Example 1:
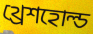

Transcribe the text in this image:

থ্রেশহোল্ড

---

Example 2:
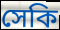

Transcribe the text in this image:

সেকি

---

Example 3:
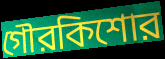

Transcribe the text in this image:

গৌরকিশোর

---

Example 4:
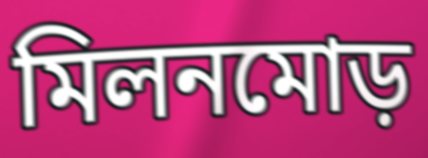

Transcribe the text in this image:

মিলনমোড়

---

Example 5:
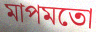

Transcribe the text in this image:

মাপমতো